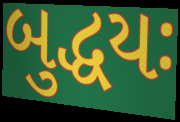
બુદ્ધયઃ